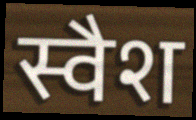
स्वैश